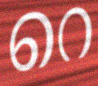
റെ